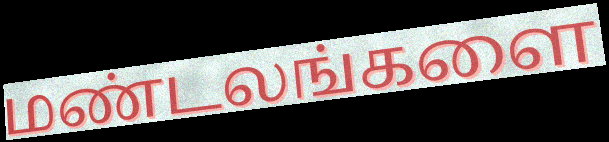
மண்டலங்களை